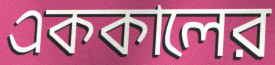
এককালের